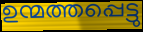
ഉന്മത്തപ്പെട്ടു